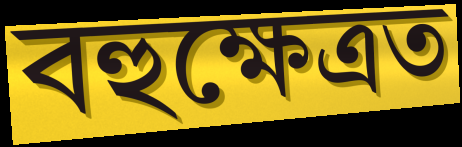
বহুক্ষেত্ৰত